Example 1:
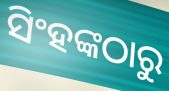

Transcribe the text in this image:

ସିଂହଙ୍କଠାରୁ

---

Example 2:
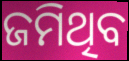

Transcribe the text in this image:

ଜମିଥିବ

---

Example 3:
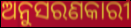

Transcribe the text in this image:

ଅନୁସରଣକାରୀ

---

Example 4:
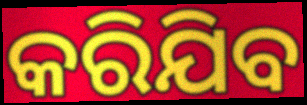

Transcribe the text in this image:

କରିଯିବ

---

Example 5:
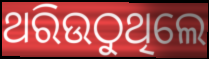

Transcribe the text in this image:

ଥରିଉଠୁଥିଲେ